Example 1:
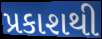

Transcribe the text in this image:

પ્રકાશથી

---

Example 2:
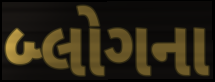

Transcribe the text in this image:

બ્લોગના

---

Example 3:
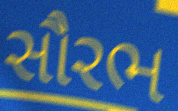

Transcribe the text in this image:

સૌરભ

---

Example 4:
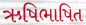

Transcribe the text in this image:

ઋષિભાષિત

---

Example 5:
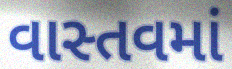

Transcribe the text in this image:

વાસ્તવમાં